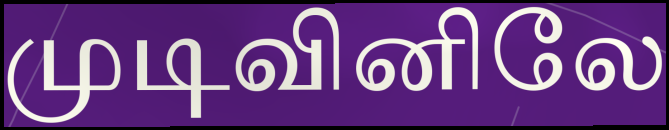
முடிவினிலே